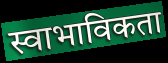
स्वाभाविकता